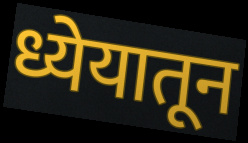
ध्येयातून